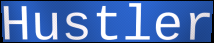
Hustler